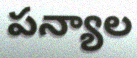
పన్యాల